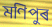
মণিপুৰ